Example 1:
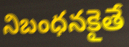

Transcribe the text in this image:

నిబంధనకైతే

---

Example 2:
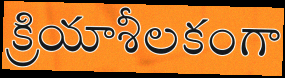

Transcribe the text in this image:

క్రియాశీలకంగా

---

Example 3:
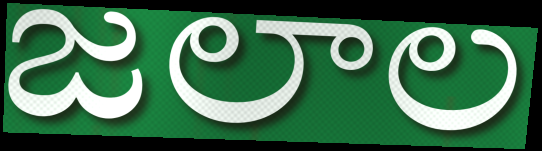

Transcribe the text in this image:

జలాల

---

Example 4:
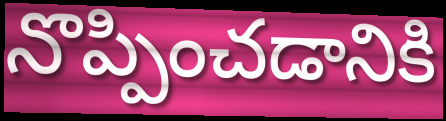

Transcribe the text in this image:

నొప్పించడానికి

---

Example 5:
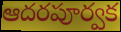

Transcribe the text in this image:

ఆదరపూర్వక